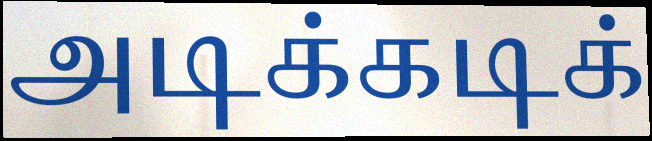
அடிக்கடிக்